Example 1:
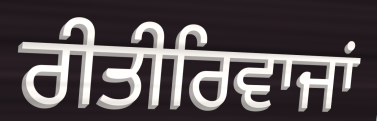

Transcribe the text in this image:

ਰੀਤੀਰਿਵਾਜਾਂ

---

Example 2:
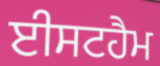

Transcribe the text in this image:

ਈਸਟਹੈਮ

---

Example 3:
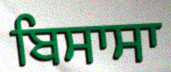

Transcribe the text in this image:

ਬਿਸਾਸਾ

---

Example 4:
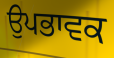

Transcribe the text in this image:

ਉਪਭਾਵਕ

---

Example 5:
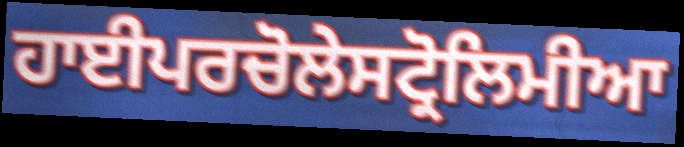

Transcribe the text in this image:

ਹਾਈਪਰਚੋਲੇਸਟ੍ਰੋਲਿਮੀਆ